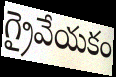
గ్రైవేయకం